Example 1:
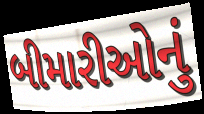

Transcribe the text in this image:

બીમારીઓનું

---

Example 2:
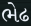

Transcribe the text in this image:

ભેઢ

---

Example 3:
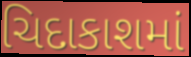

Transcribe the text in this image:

ચિદાકાશમાં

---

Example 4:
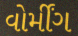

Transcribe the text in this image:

વોર્મીંગ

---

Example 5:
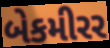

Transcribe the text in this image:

બેકમીરર